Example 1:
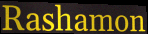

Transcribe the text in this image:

Rashamon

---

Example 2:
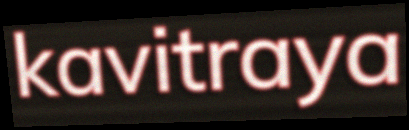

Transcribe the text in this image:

kavitraya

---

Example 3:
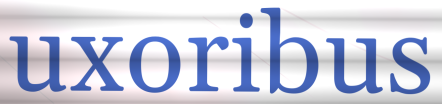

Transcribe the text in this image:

uxoribus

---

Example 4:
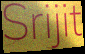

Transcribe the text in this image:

Srijit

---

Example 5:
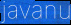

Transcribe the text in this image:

javanu